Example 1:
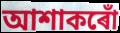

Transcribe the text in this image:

আশাকৰোঁ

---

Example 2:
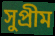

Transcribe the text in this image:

সুপ্ৰীম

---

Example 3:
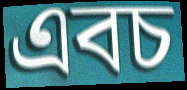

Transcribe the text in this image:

এবচ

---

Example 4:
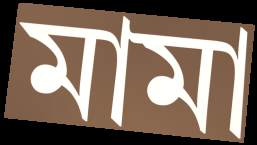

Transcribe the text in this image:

মামা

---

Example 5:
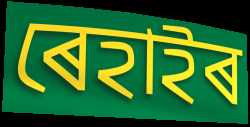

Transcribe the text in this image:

ৰেহাইৰ